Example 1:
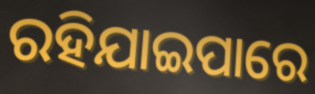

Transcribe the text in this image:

ରହିଯାଇପାରେ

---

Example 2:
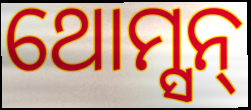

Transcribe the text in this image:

ଥୋମ୍ସନ୍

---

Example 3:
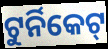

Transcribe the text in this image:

ଟୁର୍ନିକେଟ୍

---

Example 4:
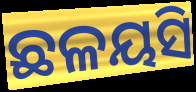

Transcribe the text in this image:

ଛଳୟସି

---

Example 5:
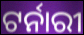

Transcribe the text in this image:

ଟର୍ନାରୀ